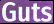
Guts